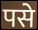
पसे